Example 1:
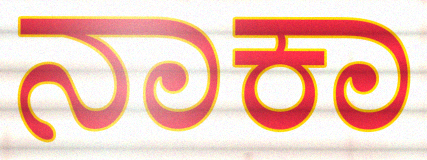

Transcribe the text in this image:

ನಾಕಾ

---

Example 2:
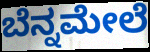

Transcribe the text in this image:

ಬೆನ್ನಮೇಲೆ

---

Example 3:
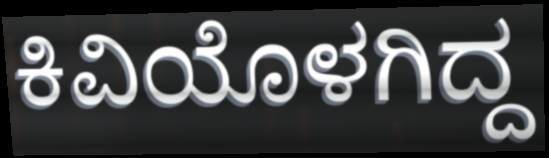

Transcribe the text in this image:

ಕಿವಿಯೊಳಗಿದ್ದ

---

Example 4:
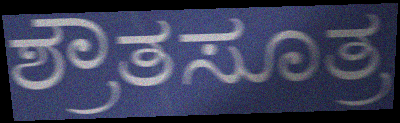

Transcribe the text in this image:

ಶ್ರೌತಸೂತ್ರ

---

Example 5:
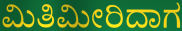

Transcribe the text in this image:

ಮಿತಿಮೀರಿದಾಗ